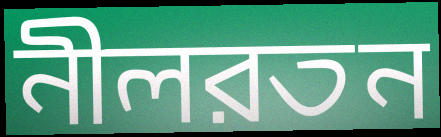
নীলরতন